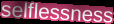
selflessness